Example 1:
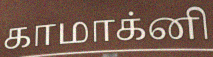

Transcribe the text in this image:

காமாக்னி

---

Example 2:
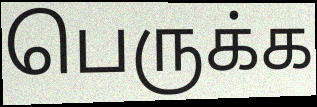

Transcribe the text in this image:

பெருக்க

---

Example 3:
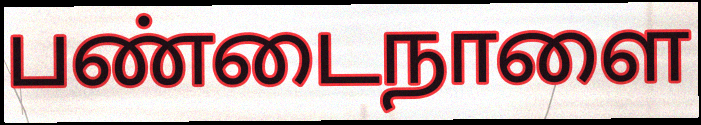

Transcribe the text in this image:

பண்டைநாளை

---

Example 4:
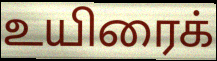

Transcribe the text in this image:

உயிரைக்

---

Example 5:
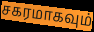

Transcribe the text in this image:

சகரமாகவும்